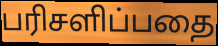
பரிசளிப்பதை